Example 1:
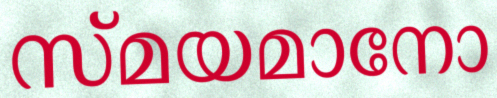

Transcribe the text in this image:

സ്മയമാനോ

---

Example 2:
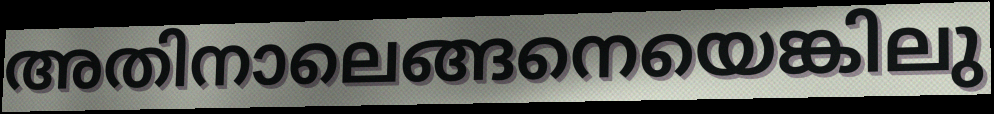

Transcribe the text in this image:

അതിനാലെങ്ങനെയെങ്കിലു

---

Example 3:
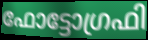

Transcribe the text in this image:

ഫോട്ടോഗ്രഫി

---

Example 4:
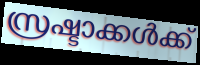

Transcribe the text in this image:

സ്രഷ്ടാക്കൾക്ക്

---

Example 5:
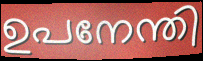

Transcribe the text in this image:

ഉപനേന്തി